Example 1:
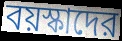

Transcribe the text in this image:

বয়স্কাদের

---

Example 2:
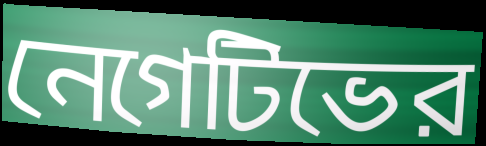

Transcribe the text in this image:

নেগেটিভের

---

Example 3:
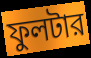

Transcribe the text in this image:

ফুলটার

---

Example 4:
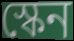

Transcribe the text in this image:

স্কেন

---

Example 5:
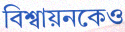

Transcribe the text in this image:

বিশ্বায়নকেও